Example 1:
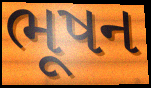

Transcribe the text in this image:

ભૂષન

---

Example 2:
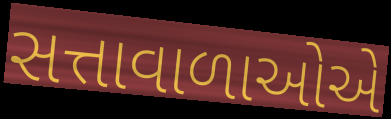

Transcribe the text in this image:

સત્તાવાળાઓએ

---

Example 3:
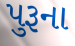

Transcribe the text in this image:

પુરૂના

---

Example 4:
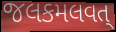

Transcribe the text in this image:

જલકમલવત્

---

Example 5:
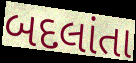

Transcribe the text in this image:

બદલાંતા